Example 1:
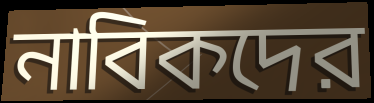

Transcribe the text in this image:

নাবিকদের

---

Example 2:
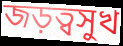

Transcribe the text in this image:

জড়ত্বসুখ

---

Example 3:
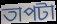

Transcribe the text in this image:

তাপটা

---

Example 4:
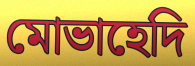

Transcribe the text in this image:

মোভাহেদি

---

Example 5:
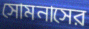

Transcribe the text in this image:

সোমনাসের